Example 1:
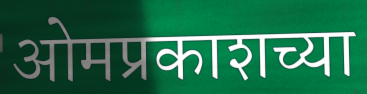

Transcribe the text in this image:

ओमप्रकाशच्या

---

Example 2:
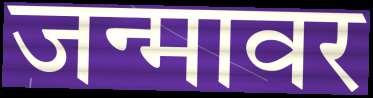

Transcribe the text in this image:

जन्मावर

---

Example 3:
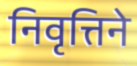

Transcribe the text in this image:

निवृत्तिने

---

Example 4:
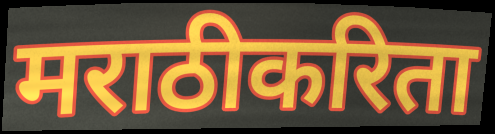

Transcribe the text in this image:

मराठीकरिता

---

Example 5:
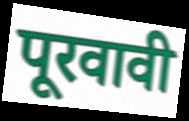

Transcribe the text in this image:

पूरवावी